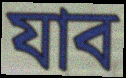
যাব